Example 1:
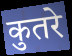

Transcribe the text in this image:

कुतरे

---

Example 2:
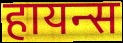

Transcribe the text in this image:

हायन्स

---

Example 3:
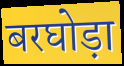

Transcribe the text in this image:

बरघोड़ा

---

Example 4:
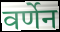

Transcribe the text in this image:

वर्णेन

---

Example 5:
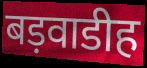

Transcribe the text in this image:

बड़वाडीह